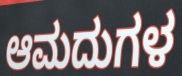
ಆಮದುಗಳ